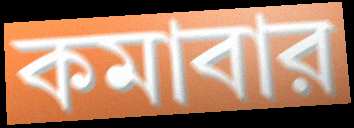
কমাবার